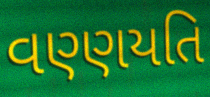
વણ્ણયતિ